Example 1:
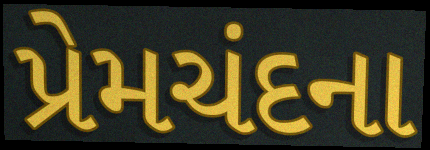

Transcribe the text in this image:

પ્રેમચંદના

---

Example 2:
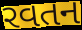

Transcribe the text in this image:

રવતન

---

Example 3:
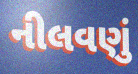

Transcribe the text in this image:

નીલવણું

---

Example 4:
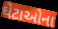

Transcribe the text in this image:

ઘેટાઓના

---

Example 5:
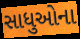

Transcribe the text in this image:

સાધુઓના